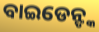
ବାଇଡେନ୍ଙ୍କ